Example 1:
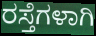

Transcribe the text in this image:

ರಸ್ತೆಗಳಾಗಿ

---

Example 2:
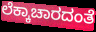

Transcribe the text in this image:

ಲೆಕ್ಕಾಚಾರದಂತೆ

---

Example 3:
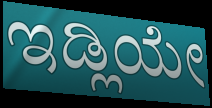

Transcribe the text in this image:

ಇಡ್ಲಿಯೇ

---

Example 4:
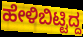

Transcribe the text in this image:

ಹೇಳಿಬಿಟ್ಟಿದ್ದ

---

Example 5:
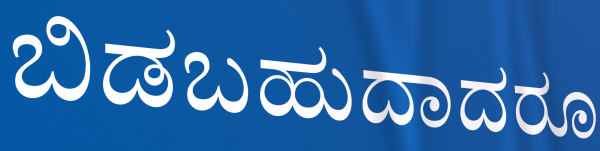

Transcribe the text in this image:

ಬಿಡಬಹುದಾದರೂ